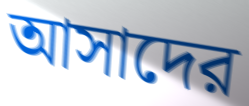
আসাদের